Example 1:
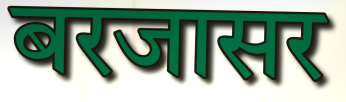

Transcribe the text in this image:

बरजासर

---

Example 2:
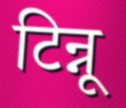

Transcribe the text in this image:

टिन्नू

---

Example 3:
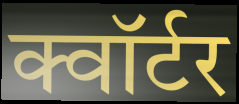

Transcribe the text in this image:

क्‍वॉर्टर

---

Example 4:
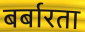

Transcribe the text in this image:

बर्बारता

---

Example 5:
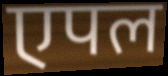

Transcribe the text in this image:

एपल